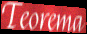
Teorema